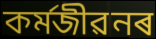
কৰ্মজীৱনৰ